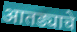
आतड्याचे